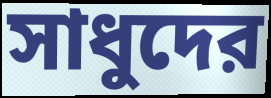
সাধুদের